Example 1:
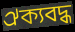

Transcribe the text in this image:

ঐক্যবদ্ধ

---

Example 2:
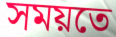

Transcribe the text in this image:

সময়তে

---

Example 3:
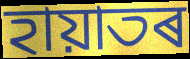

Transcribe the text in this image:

হায়াতৰ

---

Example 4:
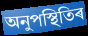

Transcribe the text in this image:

অনুপস্থিতিৰ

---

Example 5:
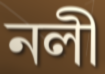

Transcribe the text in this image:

নলী